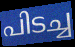
പിടച്ച